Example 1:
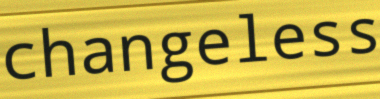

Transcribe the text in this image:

changeless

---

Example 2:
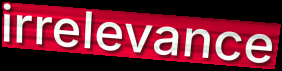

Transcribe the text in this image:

irrelevance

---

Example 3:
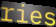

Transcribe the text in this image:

ries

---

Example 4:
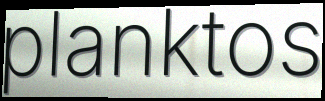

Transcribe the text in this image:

planktos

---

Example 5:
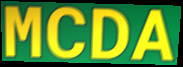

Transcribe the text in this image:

MCDA